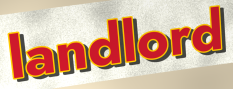
landlord